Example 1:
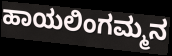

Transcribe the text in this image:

ಹಾಯಲಿಂಗಮ್ಮನ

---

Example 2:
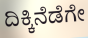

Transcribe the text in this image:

ದಿಕ್ಕಿನೆಡೆಗೇ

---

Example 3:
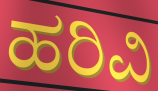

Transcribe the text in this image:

ಹರಿವಿ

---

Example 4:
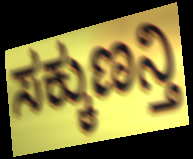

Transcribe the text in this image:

ಸಕ್ಕುಣನ್ತಿ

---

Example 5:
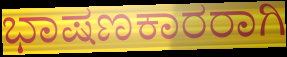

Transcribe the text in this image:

ಭಾಷಣಕಾರರಾಗಿ